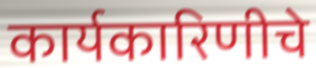
कार्यकारिणीचे